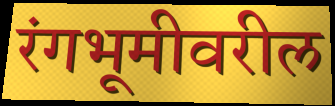
रंगभूमीवरील